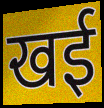
खई